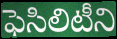
ఫెసిలిటీని